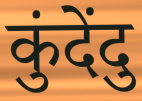
कुंदेंदु